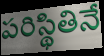
పరిస్థితినే